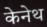
केनेथ